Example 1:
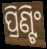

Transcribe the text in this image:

ପ୍ରିଣ୍ଟିଂ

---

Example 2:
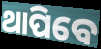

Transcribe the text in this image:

ଥାପିବେ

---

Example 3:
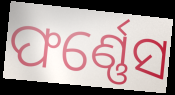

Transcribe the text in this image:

ଫର୍ଣ୍ଣେସ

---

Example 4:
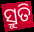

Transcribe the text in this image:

ସ୍ରୁତି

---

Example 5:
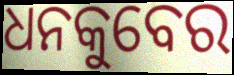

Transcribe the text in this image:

ଧନକୁବେର